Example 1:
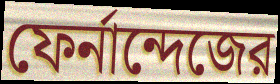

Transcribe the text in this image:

ফের্নান্দেজের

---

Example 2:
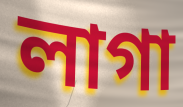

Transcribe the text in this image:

লাগা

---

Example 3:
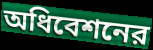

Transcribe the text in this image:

অধিবেশনের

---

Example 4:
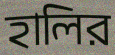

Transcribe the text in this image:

হালির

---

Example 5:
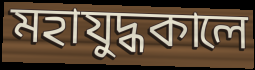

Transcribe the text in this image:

মহাযুদ্ধকালে